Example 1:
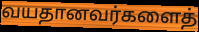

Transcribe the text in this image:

வயதானவர்களைத்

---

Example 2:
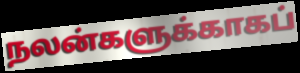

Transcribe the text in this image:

நலன்களுக்காகப்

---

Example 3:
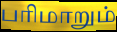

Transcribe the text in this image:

பரிமாறும்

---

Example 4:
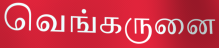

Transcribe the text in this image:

வெங்கருனை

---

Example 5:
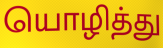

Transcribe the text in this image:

யொழித்து